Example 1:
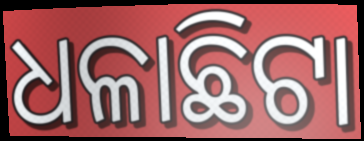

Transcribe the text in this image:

ଧଳାଛିଟା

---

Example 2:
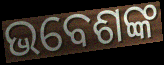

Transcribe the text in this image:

ଭବେଶଙ୍କ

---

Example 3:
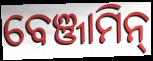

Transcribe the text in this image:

ବେଞ୍ଜାମିନ୍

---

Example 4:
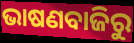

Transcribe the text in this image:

ଭାଷଣବାଜିରୁ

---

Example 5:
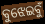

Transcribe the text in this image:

ବୁଝେଇବୁଁ